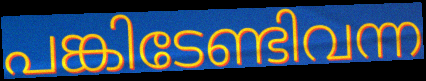
പങ്കിടേണ്ടിവന്ന